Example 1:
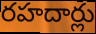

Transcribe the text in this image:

రహదార్లు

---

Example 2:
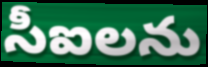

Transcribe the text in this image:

సీఐలను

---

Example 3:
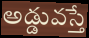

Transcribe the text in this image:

అడ్డువస్తే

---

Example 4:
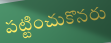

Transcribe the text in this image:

పట్టించుకొనరు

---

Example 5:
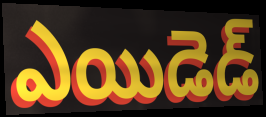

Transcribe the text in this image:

ఎయిడెడ్